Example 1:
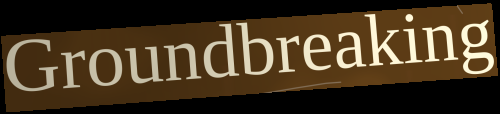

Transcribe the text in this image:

Groundbreaking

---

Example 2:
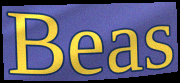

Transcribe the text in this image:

Beas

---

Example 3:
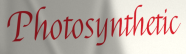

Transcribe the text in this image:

Photosynthetic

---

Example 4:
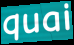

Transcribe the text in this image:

quai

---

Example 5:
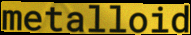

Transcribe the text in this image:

metalloid